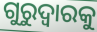
ଗୁରୁଦ୍ୱାରକୁ